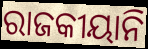
ରାଜକୀୟାନି